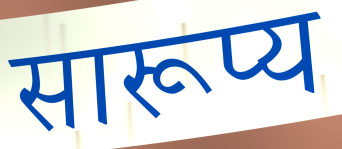
सारूप्य